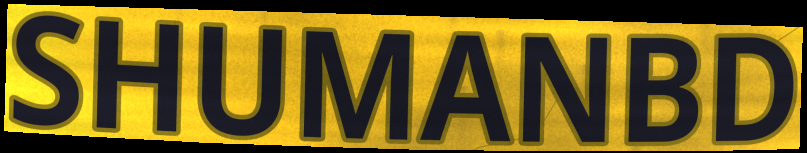
SHUMANBD